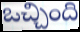
ఒచ్చింది